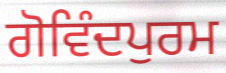
ਗੋਵਿੰਦਪੁਰਮ